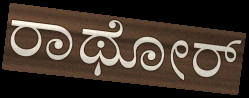
ರಾಥೋರ್